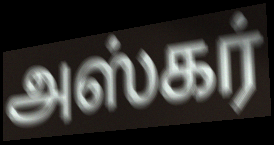
அஸ்கர்